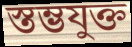
স্তম্ভযুক্ত